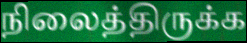
நிலைத்திருக்க